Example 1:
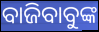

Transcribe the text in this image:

ବାଜିବାବୁଙ୍କ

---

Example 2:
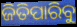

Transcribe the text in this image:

ଜିତିପାରିବୁ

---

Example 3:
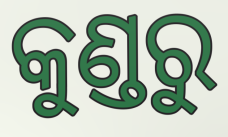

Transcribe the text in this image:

କୁଣ୍ଡରୁ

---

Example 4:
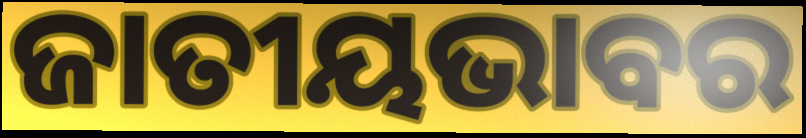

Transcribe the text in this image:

ଜାତୀୟଭାବର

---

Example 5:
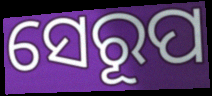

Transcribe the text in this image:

ସେରୂପ